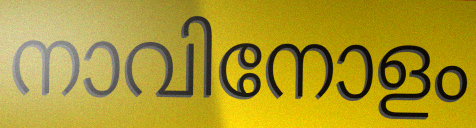
നാവിനോളം